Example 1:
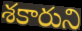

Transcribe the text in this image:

శకారుని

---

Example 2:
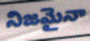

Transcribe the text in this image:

నిజమైనా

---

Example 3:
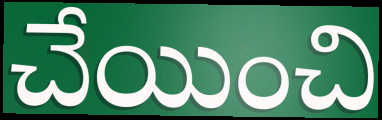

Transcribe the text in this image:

చేయించి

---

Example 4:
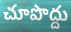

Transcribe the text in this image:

చూపొద్దు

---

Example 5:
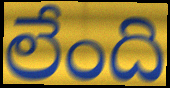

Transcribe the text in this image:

లేంది